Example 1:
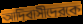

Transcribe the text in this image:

আদিবাসীদেরকে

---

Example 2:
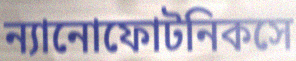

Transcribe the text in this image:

ন্যানোফোটনিকসে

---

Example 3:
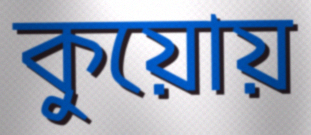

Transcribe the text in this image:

কুয়োয়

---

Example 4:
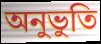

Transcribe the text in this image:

অনুভুতি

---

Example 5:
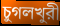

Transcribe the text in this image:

চুগলখুরী